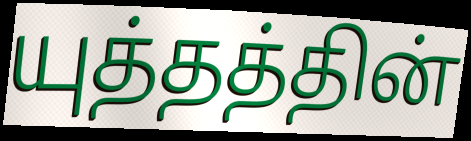
யுத்தத்தின்